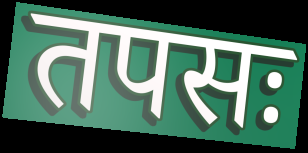
तपसः